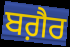
ਬਗ਼ੈਰ